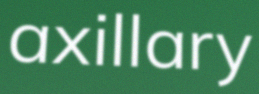
axillary